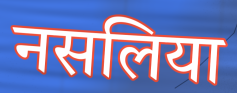
नसलिया